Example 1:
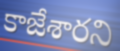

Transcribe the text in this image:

కాజేశారని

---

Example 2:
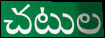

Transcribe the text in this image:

చటుల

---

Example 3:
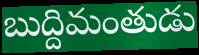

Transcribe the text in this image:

బుద్దిమంతుడు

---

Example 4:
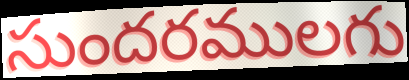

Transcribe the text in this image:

సుందరములగు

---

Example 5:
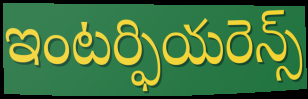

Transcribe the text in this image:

ఇంటర్ఫియరెన్స్